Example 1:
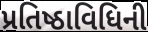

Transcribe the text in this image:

પ્રતિષ્ઠાવિધિની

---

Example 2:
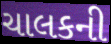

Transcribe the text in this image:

ચાલકની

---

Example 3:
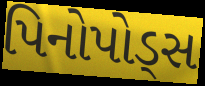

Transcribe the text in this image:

પિનોપોડ્સ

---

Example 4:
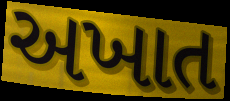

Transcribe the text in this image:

અખાત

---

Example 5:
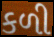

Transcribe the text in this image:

કળી